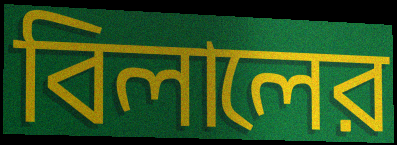
বিলালের